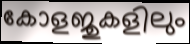
കോളജുകളിലും